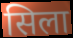
सिला